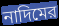
নাদিমের